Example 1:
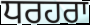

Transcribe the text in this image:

ਧਰਹਰਾ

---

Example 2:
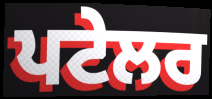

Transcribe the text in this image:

ਪਟੇਲਰ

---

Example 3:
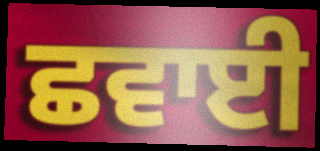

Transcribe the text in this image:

ਛਵਾਈ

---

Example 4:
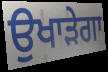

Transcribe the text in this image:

ਉਖਾੜੇਗਾ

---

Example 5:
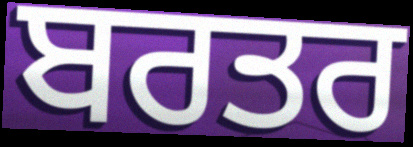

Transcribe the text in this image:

ਬਰਤਰ